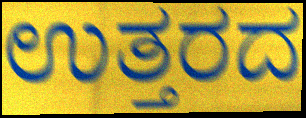
ಉತ್ತರದ